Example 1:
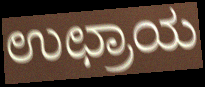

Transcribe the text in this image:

ಉಛ್ರಾಯ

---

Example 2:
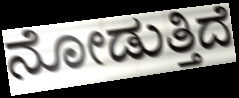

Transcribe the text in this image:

ನೋಡುತ್ತಿದೆ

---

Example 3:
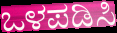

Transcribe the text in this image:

ಒಳಪಡಿಸಿ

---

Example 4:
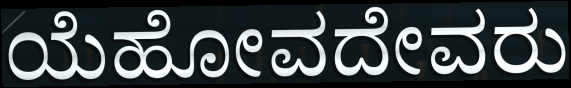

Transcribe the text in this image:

ಯೆಹೋವದೇವರು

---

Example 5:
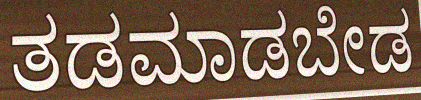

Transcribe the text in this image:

ತಡಮಾಡಬೇಡ